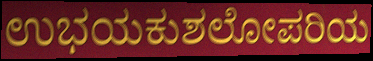
ಉಭಯಕುಶಲೋಪರಿಯ